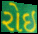
રોઇ